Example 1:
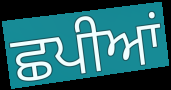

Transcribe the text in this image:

ਛਪੀਆਂ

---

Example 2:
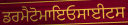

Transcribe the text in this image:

ਡਰਮੈਟੋਮਾਇਓਸਾਈਟਸ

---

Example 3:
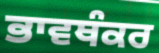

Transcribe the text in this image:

ਭਾਵਥੰਕਰ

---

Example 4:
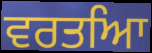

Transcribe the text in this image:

ਵਰਤਆਿ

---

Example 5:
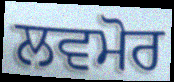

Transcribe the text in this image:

ਲਵਮੋਰ